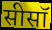
सीसॉ